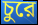
চুরে